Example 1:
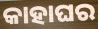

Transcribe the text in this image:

କାହାଘର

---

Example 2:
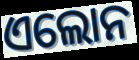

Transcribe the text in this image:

ଏଲୋନ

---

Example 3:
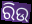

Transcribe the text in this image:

ରିଉ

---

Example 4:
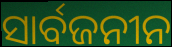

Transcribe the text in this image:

ସାର୍ବଜନୀନ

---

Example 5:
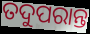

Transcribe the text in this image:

ତଦୁପରାନ୍ତ